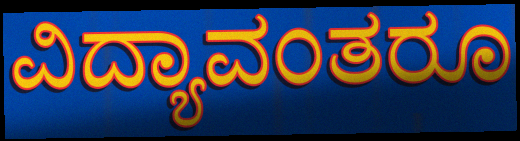
ವಿದ್ಯಾವಂತರೂ